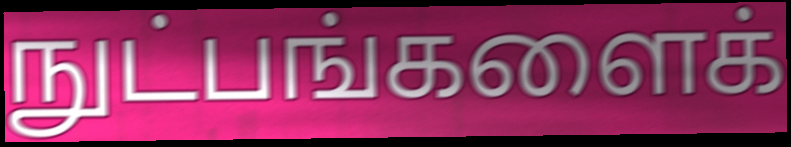
நுட்பங்களைக்